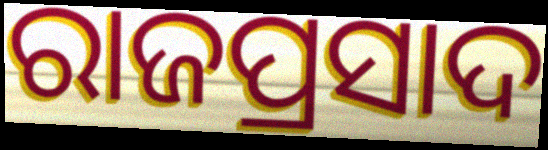
ରାଜପ୍ରସାଦ